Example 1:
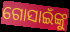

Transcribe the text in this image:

ଗୋସାଇଁଙ୍କୁ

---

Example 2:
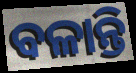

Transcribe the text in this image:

ବଳାନ୍ତି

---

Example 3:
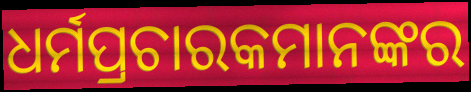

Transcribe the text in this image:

ଧର୍ମପ୍ରଚାରକମାନଙ୍କର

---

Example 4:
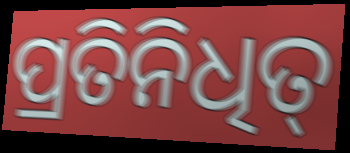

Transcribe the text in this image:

ପ୍ରତିନିଧିତ୍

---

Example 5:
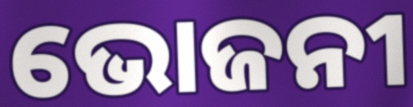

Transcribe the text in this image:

ଭୋଜନୀ